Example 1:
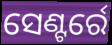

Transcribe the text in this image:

ସେଣ୍ଟର୍ରେ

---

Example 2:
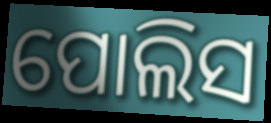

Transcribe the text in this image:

ପୋଲିସ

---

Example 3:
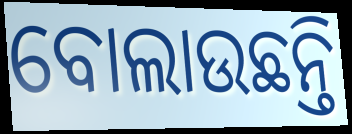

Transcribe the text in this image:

ବୋଲାଉଛନ୍ତି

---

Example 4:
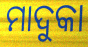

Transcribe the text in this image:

ମାଦୁକା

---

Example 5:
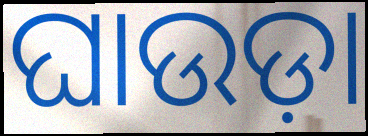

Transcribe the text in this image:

ଘାଉଡ଼ା